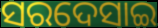
ସରଦେସାଇ